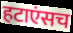
हटाएंसच